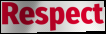
Respect